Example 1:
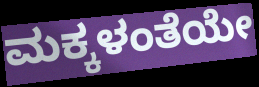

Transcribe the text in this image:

ಮಕ್ಕಳಂತೆಯೇ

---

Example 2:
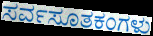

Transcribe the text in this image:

ಸರ್ವಸೂತಕಂಗಳು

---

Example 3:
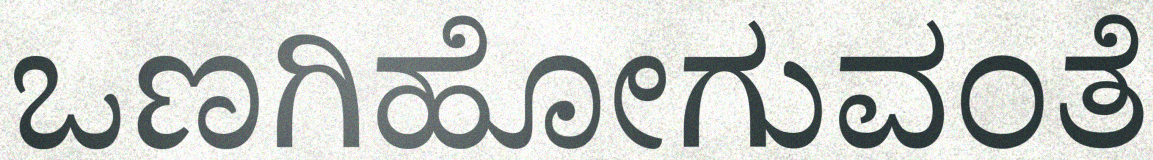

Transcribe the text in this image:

ಒಣಗಿಹೋಗುವಂತೆ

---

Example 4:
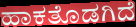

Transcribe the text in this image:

ಹಾಕತೊಡಗಿದೆ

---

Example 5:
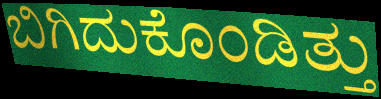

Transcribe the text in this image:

ಬಿಗಿದುಕೊಂಡಿತ್ತು